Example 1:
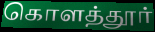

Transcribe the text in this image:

கொளத்தூர்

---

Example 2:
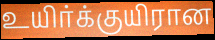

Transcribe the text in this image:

உயிர்க்குயிரான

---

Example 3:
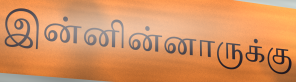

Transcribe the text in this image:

இன்னின்னாருக்கு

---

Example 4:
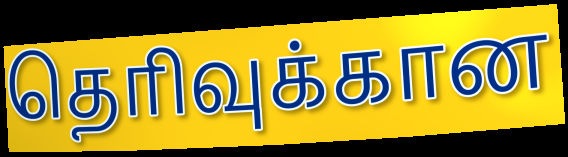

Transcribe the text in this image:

தெரிவுக்கான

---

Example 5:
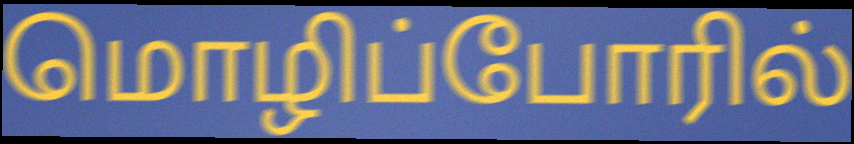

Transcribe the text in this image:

மொழிப்போரில்